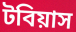
টবিয়াস